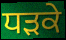
ਧੜਕੇ